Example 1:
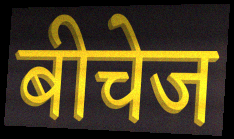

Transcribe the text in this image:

बीचेज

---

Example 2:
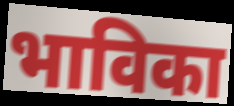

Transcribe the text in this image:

भाविका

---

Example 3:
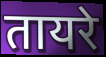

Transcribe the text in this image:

तायरे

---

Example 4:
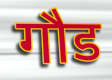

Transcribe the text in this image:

गौड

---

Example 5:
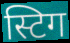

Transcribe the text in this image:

स्टिग